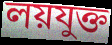
লয়যুক্ত